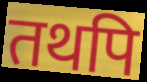
तथपि